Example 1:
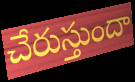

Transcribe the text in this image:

చేరుస్తుందా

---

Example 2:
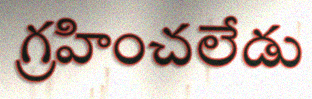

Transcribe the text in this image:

గ్రహించలేడు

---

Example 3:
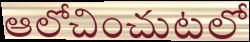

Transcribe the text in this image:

ఆలోచించుటలో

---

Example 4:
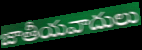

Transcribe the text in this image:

జాతీయవాదులు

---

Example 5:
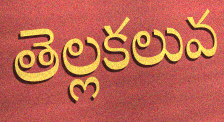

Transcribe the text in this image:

తెల్లకలువ